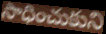
సాధించుకుని